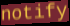
notify